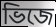
ভিজে